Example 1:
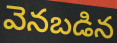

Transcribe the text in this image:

వెనబడిన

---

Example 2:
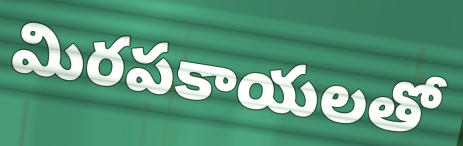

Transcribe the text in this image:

మిరపకాయలతో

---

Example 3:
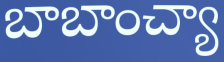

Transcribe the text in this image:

బాబాంచ్యా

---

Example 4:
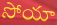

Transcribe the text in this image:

సోయా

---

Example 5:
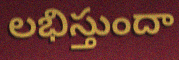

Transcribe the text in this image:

లభిస్తుందా